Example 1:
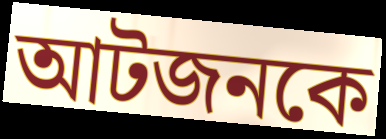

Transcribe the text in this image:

আটজনকে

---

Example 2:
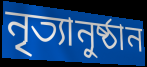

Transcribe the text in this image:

নৃত্যানুষ্ঠান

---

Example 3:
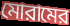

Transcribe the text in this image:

মোরামের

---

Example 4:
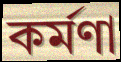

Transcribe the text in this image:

কর্মণা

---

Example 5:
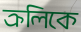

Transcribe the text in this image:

ক্রলিকে